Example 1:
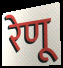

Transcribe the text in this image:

रेणू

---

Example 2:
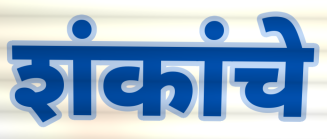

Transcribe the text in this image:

शंकांचे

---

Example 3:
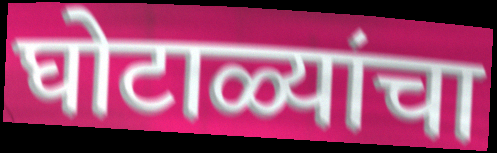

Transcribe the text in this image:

घोटाळ्यांचा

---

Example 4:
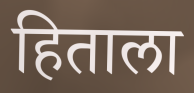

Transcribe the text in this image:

हिताला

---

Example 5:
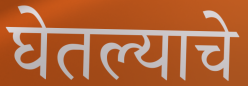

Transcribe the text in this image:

घेतल्याचे